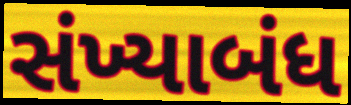
સંખ્યાબંધ